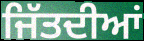
ਜਿੱਤਦੀਆਂ